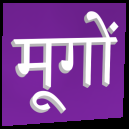
मूगों